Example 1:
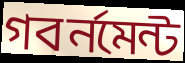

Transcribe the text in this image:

গবর্নমেন্ট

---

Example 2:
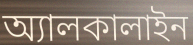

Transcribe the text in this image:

অ্যালকালাইন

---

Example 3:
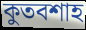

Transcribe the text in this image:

কুতবশাহ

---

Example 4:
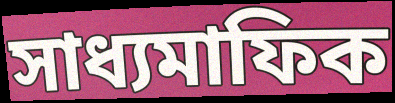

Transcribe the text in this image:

সাধ্যমাফিক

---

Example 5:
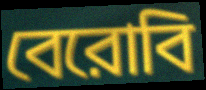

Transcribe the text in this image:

বেরোবি